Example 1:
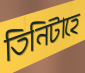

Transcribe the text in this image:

তিনিটাহে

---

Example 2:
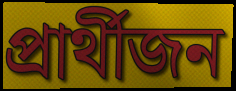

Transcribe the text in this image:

প্ৰাৰ্থীজন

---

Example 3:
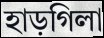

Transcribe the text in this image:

হাড়গিলা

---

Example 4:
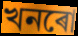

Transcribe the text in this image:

খনৰো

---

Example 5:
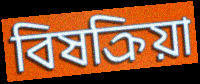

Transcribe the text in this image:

বিষক্ৰিয়া